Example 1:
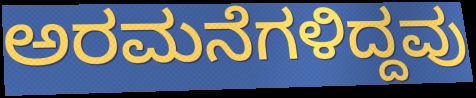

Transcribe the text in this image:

ಅರಮನೆಗಳಿದ್ದವು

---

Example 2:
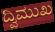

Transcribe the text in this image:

ದ್ವಿಮುಖ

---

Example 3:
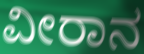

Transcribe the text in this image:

ವೀರಾನ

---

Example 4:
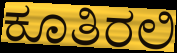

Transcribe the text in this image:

ಕೂತಿರಲಿ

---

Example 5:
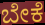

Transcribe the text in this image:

ಬೇಕೆ